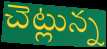
చెట్లున్న